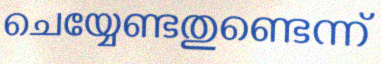
ചെയ്യേണ്ടതുണ്ടെന്ന്